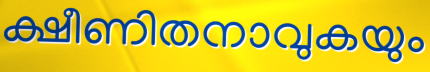
ക്ഷീണിതനാവുകയും